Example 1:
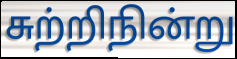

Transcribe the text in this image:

சுற்றிநின்று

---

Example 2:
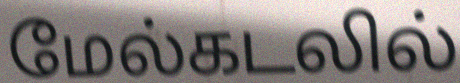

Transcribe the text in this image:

மேல்கடலில்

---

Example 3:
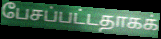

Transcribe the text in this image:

பேசப்பட்டதாகக்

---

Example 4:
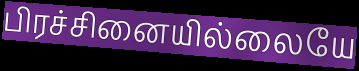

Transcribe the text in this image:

பிரச்சினையில்லையே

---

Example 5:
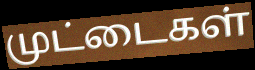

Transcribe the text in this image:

முட்டைகள்